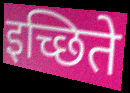
इच्छिते